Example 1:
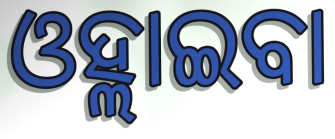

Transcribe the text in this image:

ଓହ୍ଲାଇବା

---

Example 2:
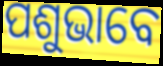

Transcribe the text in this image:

ପଶୁଭାବେ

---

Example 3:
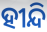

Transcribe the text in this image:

ହୀନ୍ଦି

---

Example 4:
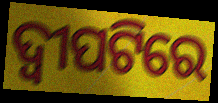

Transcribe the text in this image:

ଦ୍ୱୀପଟିରେ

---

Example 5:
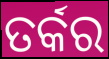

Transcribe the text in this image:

ତର୍କର